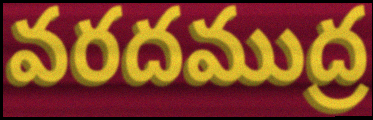
వరదముద్ర